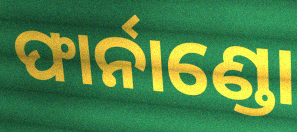
ଫାର୍ନାଣ୍ଡୋ